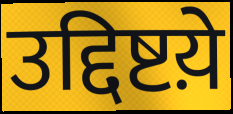
उद्दिष्टय़े